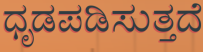
ಧೃಡಪಡಿಸುತ್ತದೆ